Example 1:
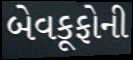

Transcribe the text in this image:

બેવકૂફોની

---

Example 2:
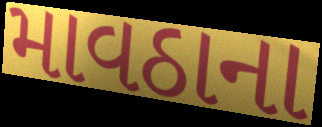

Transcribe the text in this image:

માવઠાના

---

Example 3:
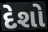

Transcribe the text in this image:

દેશો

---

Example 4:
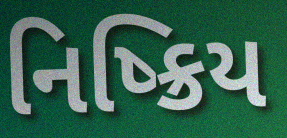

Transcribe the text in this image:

નિષ્ક્રિય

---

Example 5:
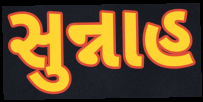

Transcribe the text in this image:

સુન્નાહ